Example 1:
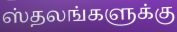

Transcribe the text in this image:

ஸ்தலங்களுக்கு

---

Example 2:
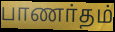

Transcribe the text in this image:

பாணர்தம்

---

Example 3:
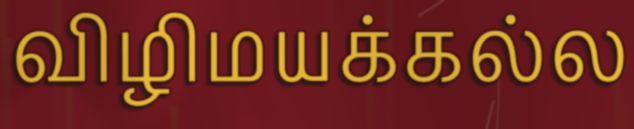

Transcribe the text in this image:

விழிமயக்கல்ல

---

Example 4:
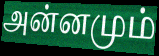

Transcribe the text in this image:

அன்னமும்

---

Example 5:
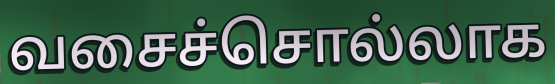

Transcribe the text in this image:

வசைச்சொல்லாக